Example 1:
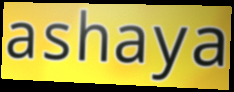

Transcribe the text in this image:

ashaya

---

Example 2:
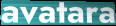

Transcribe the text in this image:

avatara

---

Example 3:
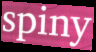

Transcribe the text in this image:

spiny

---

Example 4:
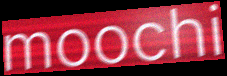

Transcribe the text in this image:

moochi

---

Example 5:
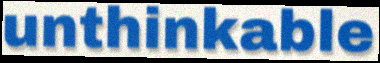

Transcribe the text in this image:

unthinkable